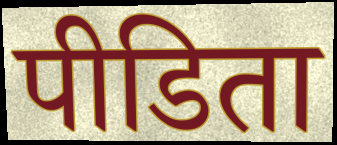
पीडिता